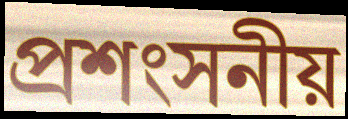
প্রশংসনীয়